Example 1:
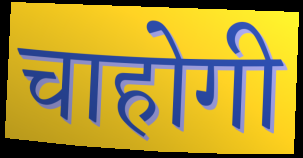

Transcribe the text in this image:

चाहोगी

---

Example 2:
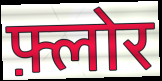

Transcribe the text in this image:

फ़्लोर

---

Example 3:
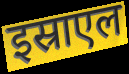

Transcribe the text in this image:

इस्राएल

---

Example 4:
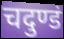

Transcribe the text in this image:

चदुण्डं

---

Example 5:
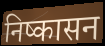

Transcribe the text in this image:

निष्कासन